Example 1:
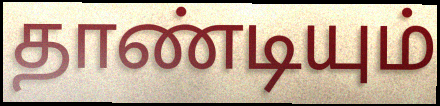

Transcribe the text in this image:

தாண்டியும்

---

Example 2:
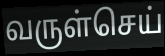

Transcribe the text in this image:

வருள்செய்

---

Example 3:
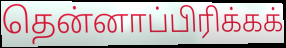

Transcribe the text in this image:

தென்னாப்பிரிக்கக்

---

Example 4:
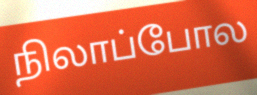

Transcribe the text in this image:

நிலாப்போல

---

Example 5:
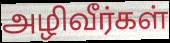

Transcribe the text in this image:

அழிவீர்கள்